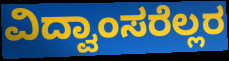
ವಿದ್ವಾಂಸರೆಲ್ಲರ